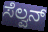
ಸೆಲ್ವನ್